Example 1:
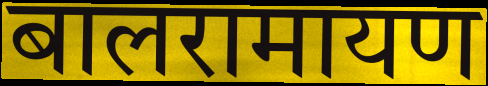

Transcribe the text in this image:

बालरामायण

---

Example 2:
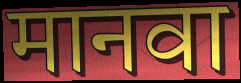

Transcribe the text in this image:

मानवा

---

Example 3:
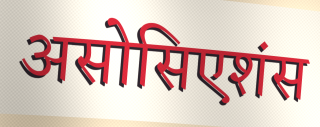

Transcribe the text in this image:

असोसिएशंस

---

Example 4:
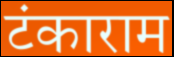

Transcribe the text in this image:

टंकाराम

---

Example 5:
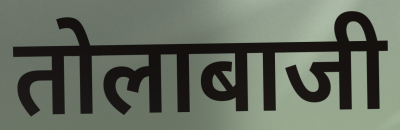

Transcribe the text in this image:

तोलाबाजी